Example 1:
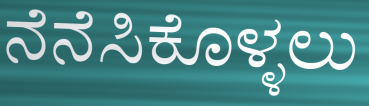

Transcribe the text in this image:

ನೆನೆಸಿಕೊಳ್ಳಲು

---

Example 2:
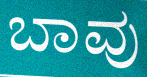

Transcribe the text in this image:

ಬಾವು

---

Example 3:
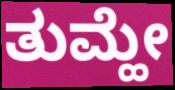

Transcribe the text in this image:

ತುಮ್ಹೇ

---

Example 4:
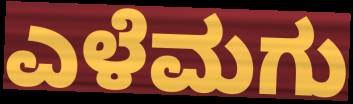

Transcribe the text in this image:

ಎಳೆಮಗು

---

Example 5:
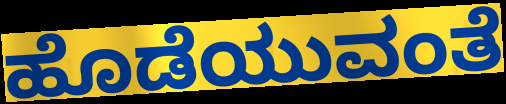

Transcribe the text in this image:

ಹೊಡೆಯುವಂತೆ